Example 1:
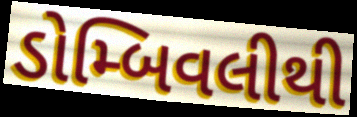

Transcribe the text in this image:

ડોમ્બિવલીથી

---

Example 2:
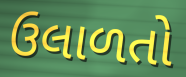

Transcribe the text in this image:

ઉલાળતો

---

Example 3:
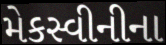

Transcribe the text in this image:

મેકસ્વીનીના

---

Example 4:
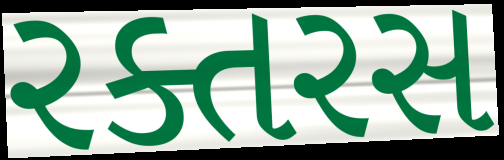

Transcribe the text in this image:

રક્તરસ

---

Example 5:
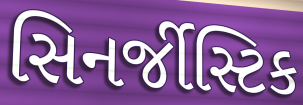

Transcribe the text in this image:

સિનર્જીસ્ટિક